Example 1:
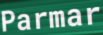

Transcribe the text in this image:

Parmar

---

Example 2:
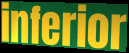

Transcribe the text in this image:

inferior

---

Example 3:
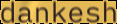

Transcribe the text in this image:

dankesh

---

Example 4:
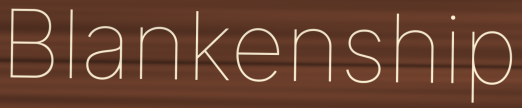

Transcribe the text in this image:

Blankenship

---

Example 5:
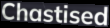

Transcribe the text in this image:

Chastised